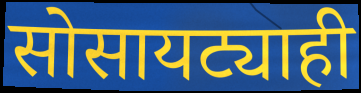
सोसायट्याही